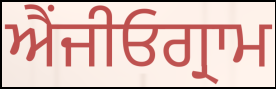
ਐਂਜੀਓਗ੍ਰਾਮ